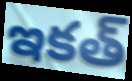
ఇకత్